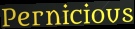
Pernicious